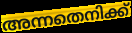
അന്നതെനിക്ക്